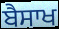
ਬੈਸਾਖ